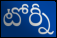
టోర్నీ